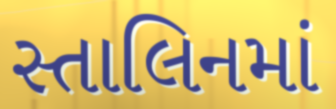
સ્તાલિનમાં